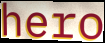
hero